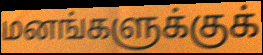
மனங்களுக்குக்